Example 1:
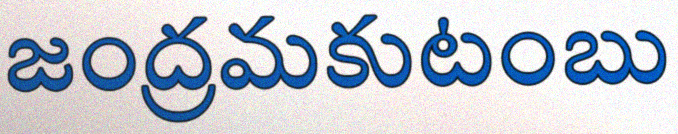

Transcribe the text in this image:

జంద్రమకుటంబు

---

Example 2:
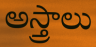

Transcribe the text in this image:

అస్త్రాలు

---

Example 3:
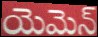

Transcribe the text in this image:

యెమెన్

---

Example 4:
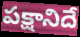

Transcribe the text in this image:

పక్షానిదే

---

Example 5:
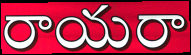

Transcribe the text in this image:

రాయరా